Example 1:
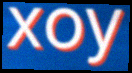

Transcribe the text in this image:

xoy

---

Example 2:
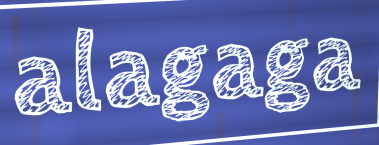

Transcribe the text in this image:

alagaga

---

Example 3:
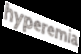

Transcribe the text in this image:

hyperemia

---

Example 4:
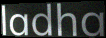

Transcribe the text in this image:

ladha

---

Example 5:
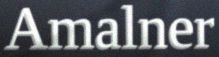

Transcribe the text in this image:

Amalner